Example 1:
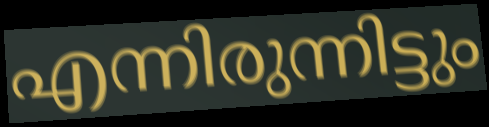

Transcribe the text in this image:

എന്നിരുന്നിട്ടും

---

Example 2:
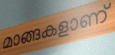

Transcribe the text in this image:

മാങ്ങകളാണ്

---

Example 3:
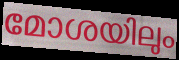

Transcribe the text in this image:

മോശയിലും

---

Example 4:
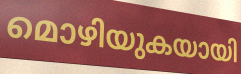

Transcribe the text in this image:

മൊഴിയുകയായി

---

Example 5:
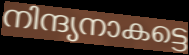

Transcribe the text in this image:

നിന്ദ്യനാകട്ടെ